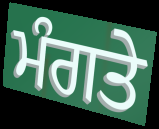
ਮੰਗਤੇ